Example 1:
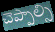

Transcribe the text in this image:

చెప్పాల్సి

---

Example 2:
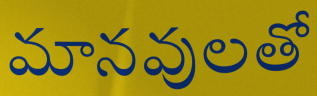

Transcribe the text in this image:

మానవులతో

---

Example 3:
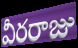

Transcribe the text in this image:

వీరరాజు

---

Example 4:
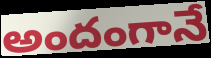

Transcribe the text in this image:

అందంగానే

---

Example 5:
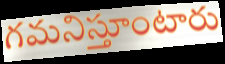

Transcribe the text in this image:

గమనిస్తూంటారు